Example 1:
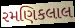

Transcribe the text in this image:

રમણિકલાલ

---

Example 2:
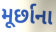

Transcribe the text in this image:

મૂર્છાના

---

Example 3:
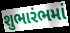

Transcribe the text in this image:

શુભારંભમાં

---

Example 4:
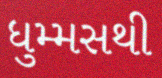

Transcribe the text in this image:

ધુમ્મસથી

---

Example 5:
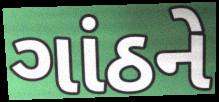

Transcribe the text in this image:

ગાંઠને